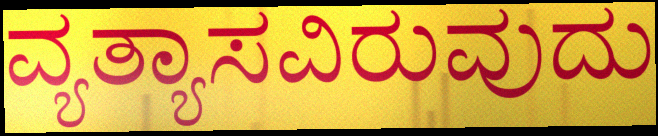
ವ್ಯತ್ಯಾಸವಿರುವುದು